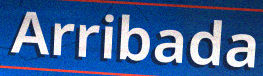
Arribada